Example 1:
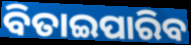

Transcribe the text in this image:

ବିତାଇପାରିବ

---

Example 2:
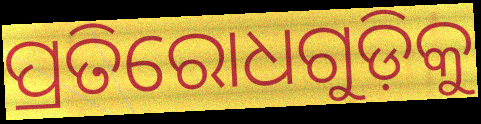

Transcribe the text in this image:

ପ୍ରତିରୋଧଗୁଡ଼ିକୁ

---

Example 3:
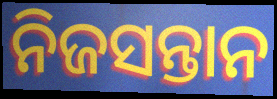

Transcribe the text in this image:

ନିଜସନ୍ତାନ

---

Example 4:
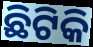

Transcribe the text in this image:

ଛିଟିକି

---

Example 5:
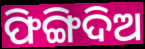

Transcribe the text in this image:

ଫିଙ୍ଗିଦିଅ